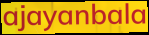
ajayanbala